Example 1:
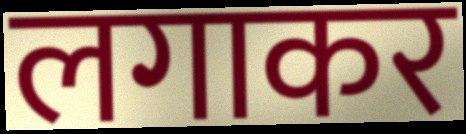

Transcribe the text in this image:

लगाकर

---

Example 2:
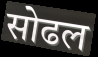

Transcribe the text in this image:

सोढल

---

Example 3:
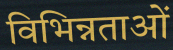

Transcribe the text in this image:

विभिन्नताओं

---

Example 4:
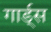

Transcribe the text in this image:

गार्ड्स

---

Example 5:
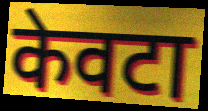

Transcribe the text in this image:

केवटा